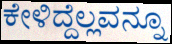
ಕೇಳಿದ್ದೆಲ್ಲವನ್ನೂ